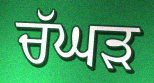
ਚੱਘੜ